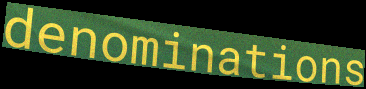
denominations